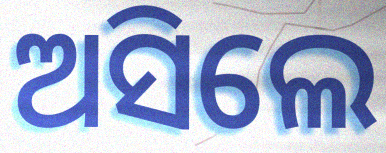
ଅସିଲେ